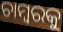
ଚାମ୍ବରକୁ